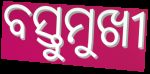
ବସ୍ତୁମୁଖୀ